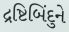
દ્રષ્ટિબિંદુને